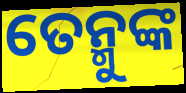
ତେନ୍ମୁଙ୍କ